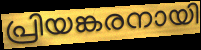
പ്രിയങ്കരനായി